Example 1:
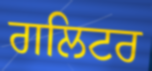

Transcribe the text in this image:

ਗਲਿਟਰ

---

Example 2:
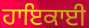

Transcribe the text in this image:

ਹਾਇਕਾਈ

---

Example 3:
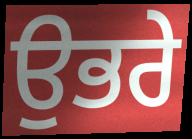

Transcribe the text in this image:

ਉਭਰੇ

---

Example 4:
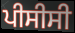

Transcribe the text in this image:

ਪੀਸੀਸੀ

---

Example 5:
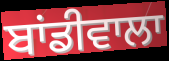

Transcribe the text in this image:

ਬਾਂਡੀਵਾਲਾ